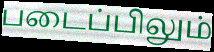
படைப்பிலும்